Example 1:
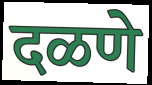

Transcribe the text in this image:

दळणे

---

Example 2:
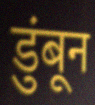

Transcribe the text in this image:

डुंबून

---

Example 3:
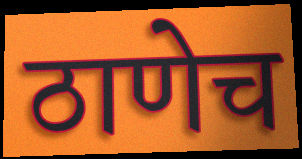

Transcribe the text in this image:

ठाणेच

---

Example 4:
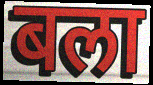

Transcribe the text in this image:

बला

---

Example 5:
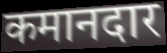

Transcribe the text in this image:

कमानदार